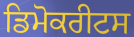
ਡਿਮੋਕਰੀਟਸ